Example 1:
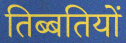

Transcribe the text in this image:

तिब्बतियों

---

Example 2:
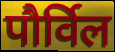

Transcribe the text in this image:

पौर्विल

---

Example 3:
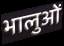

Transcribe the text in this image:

भालुओं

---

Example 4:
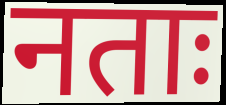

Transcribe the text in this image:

नताः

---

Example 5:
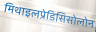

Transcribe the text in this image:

मिथाइलप्रेडिसिसोलोन